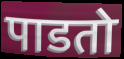
पाडतो